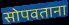
सोपवताना